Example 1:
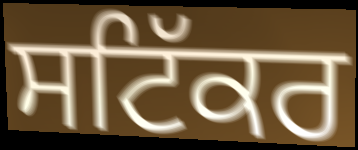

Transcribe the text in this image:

ਸਟਿੱਕਰ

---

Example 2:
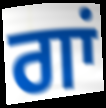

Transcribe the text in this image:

ਗਾਂ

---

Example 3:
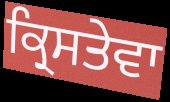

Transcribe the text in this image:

ਕ੍ਰਿਸਤੇਵਾ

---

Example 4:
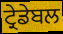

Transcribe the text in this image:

ਟ੍ਰੇਡੇਬਲ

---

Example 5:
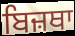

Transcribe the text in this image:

ਬਿਜ਼ਥਾ